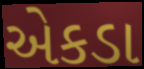
એકડા